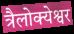
त्रैलोक्येश्वर